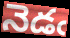
నెడఁ